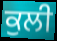
ਕੁਲੀ